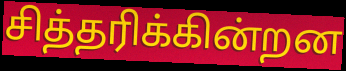
சித்தரிக்கின்றன